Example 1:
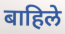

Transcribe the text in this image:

बाहिले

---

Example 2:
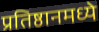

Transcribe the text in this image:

प्रतिष्ठानमध्ये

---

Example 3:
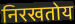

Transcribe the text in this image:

निरखतोय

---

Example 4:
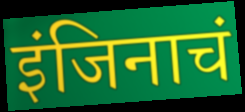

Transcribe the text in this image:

इंजिनाचं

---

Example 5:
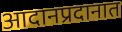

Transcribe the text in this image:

आदानप्रदानात